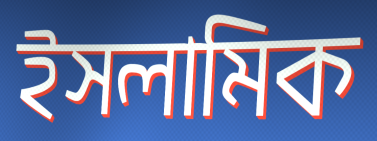
ইসলামিক